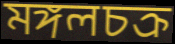
মঙ্গলচক্র